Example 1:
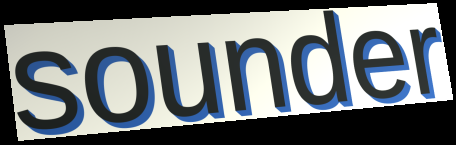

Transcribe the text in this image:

sounder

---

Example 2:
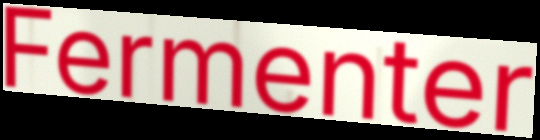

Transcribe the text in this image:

Fermenter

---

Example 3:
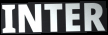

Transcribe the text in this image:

INTER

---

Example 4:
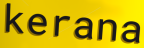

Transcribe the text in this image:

kerana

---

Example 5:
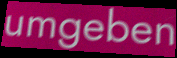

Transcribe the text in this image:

umgeben